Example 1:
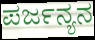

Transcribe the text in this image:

ಪರ್ಜನ್ಯನ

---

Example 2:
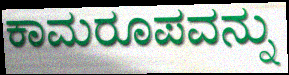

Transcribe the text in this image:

ಕಾಮರೂಪವನ್ನು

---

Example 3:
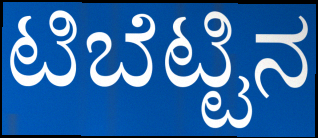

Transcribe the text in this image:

ಟಿಬೆಟ್ಟಿನ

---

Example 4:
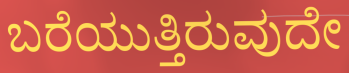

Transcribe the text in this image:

ಬರೆಯುತ್ತಿರುವುದೇ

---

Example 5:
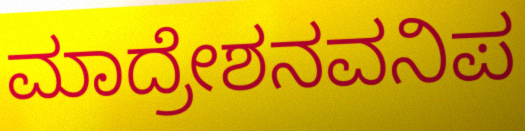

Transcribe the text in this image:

ಮಾದ್ರೇಶನವನಿಪ